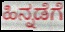
ಹಿನ್ನಡೆಗೆ